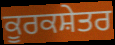
ਕੂਰਕਸ਼ੇਤਰ